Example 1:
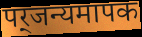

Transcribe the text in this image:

पर्जन्यमापक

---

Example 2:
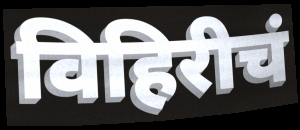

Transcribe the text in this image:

विहिरीचं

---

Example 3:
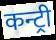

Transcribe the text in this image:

कन्ट्री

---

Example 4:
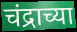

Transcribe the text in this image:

चंद्राच्या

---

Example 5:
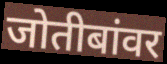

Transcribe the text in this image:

जोतीबांवर